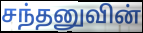
சந்தனுவின்